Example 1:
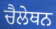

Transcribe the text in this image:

ਚੈਲੇਥਨ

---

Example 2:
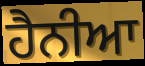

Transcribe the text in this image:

ਹੈਨੀਆ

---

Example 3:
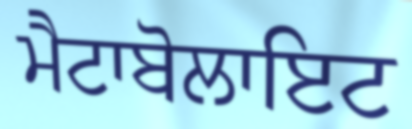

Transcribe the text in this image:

ਮੈਟਾਬੋਲਾਇਟ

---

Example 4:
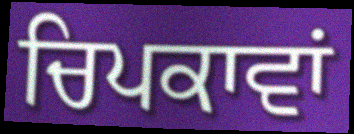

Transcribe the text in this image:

ਚਿਪਕਾਵਾਂ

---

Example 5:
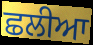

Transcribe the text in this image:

ਛਲੀਆ